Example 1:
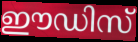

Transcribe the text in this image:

ഈഡിസ്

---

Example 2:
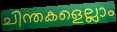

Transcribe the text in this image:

ചിന്തകളെല്ലാം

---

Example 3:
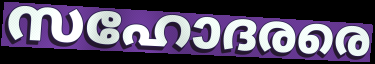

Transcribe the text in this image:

സഹോദരരെ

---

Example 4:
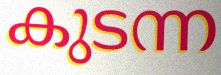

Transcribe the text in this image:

കുടന്ന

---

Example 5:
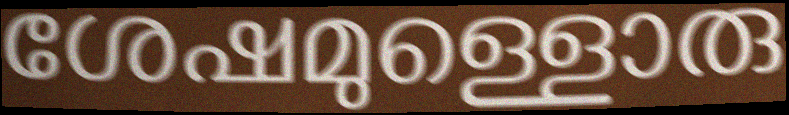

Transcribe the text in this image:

ശേഷമുള്ളൊരു